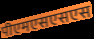
पीएमएसएसएस